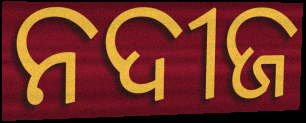
ନଦୀଜ